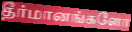
தீர்மானங்களோ